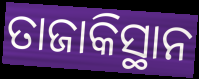
ତାଜାକିସ୍ଥାନ